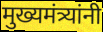
मुख्यमंत्र्यांनी